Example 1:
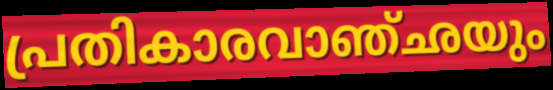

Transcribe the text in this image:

പ്രതികാരവാഞ്ഛയും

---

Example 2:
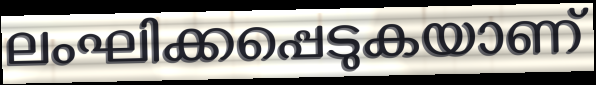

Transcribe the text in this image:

ലംഘിക്കപ്പെടുകയാണ്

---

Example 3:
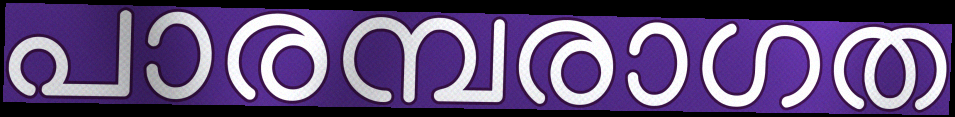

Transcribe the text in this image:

പാരമ്പരാഗത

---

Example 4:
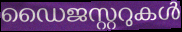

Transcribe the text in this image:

ഡൈജസ്റ്ററുകൾ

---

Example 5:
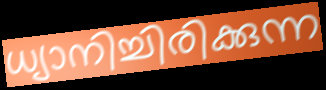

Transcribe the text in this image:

ധ്യാനിച്ചിരിക്കുന്ന